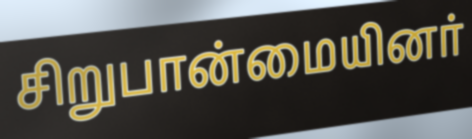
சிறுபான்மையினர்